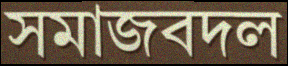
সমাজবদল